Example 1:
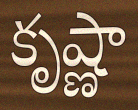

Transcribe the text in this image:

కృష్ణా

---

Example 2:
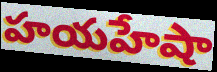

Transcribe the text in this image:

హయహేషా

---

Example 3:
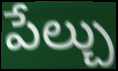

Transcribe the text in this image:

పేల్చు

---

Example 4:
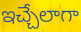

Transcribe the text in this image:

ఇచ్చేలాగా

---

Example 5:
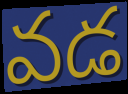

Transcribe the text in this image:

వడ